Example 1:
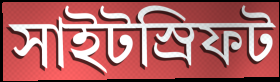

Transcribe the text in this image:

সাইটস্রিফট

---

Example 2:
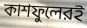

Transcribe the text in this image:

কাশফুলেরই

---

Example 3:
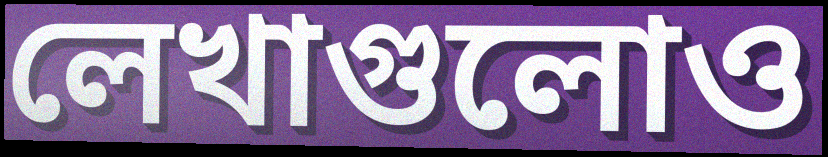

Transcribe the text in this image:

লেখাগুলোও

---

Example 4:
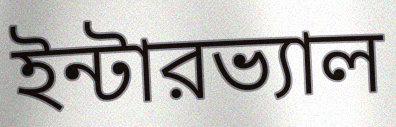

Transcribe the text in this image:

ইন্টারভ্যাল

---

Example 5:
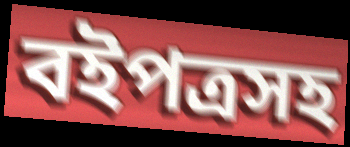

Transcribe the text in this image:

বইপত্রসহ